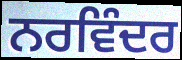
ਨਰਵਿੰਦਰ